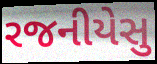
રજનીયેસુ